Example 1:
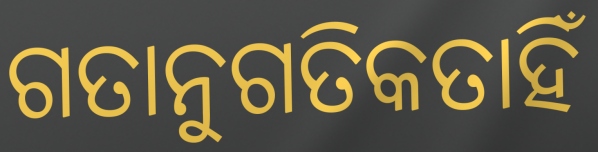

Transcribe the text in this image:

ଗତାନୁଗତିକତାହିଁ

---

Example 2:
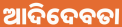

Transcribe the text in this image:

ଆଦିଦେବତା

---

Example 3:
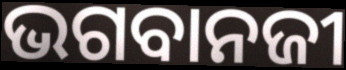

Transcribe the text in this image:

ଭଗବାନଜୀ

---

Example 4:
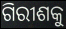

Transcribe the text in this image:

ଗିରୀଶକୁ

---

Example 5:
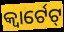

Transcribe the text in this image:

କ୍ୱାର୍ଟେଟ୍